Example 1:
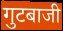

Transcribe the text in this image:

गुटबाजी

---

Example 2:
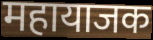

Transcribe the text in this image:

महायाजक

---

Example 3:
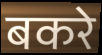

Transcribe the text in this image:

बकरे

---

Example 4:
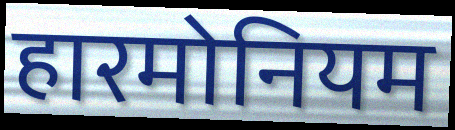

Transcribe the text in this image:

हारमोनियम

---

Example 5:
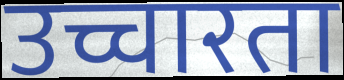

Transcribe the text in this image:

उच्चारता